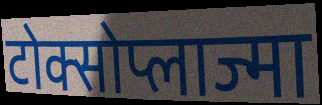
टोक्सोप्लाज्मा